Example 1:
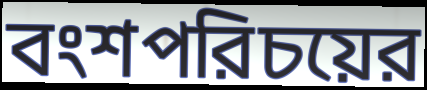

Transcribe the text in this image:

বংশপরিচয়ের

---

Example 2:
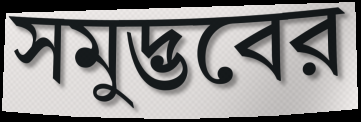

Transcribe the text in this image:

সমুদ্ভবের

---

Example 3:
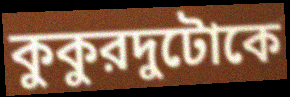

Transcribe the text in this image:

কুকুরদুটোকে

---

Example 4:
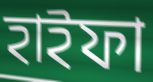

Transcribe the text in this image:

হাইফা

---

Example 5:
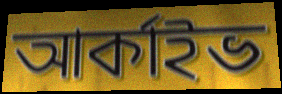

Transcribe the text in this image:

আর্কাইভ